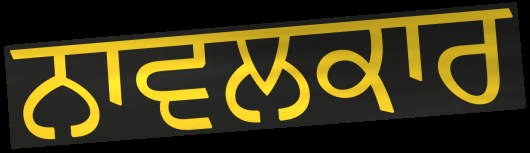
ਨਾਵਲਕਾਰ